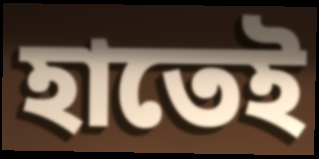
হাতেই